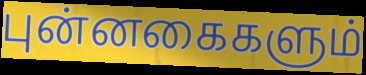
புன்னகைகளும்